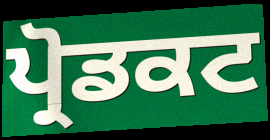
ਪ੍ਰੋਡਕਟ